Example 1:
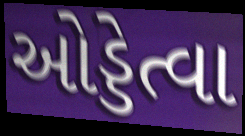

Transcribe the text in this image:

ઓડ્ડેત્વા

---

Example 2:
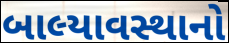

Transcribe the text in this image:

બાલ્યાવસ્થાનો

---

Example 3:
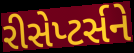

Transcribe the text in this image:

રીસેપ્ટર્સને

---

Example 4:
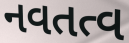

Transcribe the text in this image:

નવતત્વ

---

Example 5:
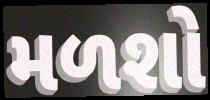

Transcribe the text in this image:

મળશો